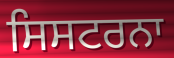
ਸਿਸਟਰਨਾ